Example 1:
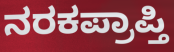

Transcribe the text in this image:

ನರಕಪ್ರಾಪ್ತಿ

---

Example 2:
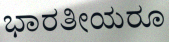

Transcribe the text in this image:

ಭಾರತೀಯರೂ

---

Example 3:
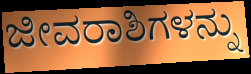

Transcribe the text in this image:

ಜೀವರಾಶಿಗಳನ್ನು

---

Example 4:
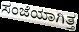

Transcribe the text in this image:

ಸಂಜೆಯಾಗಿತ್ತ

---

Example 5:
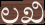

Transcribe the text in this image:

ಲಖಿ